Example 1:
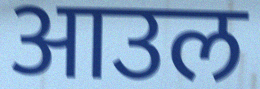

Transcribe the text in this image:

आउल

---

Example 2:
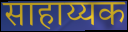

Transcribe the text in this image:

साहाय्यक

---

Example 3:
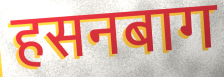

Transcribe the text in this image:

हसनबाग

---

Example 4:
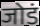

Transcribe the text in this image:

जोडं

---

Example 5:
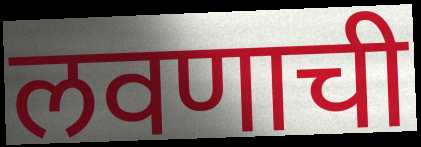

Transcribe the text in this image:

लवणाची